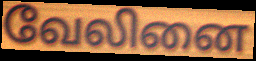
வேலினை